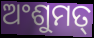
ଅଂଶୁମତ୍